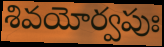
శివయోర్వపుః